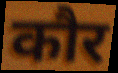
कौर